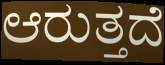
ಆರುತ್ತದೆ